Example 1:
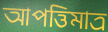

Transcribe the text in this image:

আপত্তিমাত্র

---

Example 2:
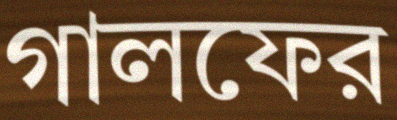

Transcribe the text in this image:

গালফের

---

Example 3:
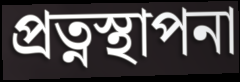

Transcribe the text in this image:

প্রত্নস্থাপনা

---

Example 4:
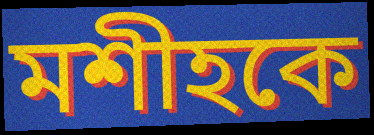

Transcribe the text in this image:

মশীহকে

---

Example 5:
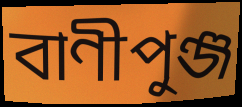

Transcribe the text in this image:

বাণীপুঞ্জ